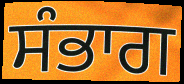
ਸੰਭਾਗ